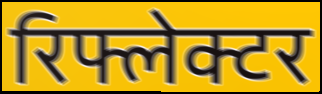
रिफ्लेक्टर